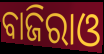
ବାଜିରାଓ